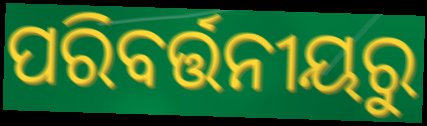
ପରିବର୍ତ୍ତନୀୟରୁ